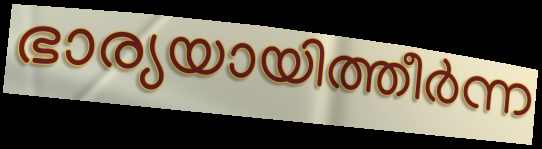
ഭാര്യയായിത്തീർന്ന